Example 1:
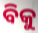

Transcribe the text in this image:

ବିକୁ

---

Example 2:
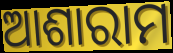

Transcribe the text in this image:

ଆଶାରାମ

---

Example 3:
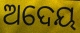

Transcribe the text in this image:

ଅଦେୟ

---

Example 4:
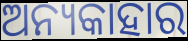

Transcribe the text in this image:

ଅନ୍ୟକାହାର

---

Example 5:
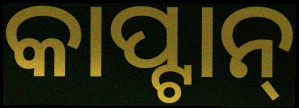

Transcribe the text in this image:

କାପ୍ଟାନ୍